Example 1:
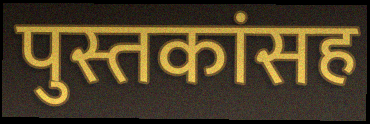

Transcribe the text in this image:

पुस्तकांसह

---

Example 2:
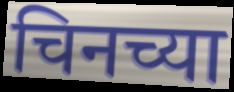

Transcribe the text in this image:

चिनच्या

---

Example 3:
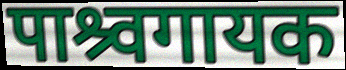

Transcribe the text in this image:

पाश्र्वगायक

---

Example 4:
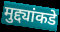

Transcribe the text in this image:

मुद्द्यांकडे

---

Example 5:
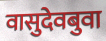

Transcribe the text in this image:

वासुदेवबुवा